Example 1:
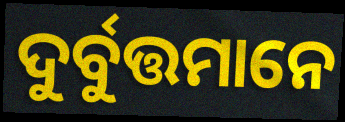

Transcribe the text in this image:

ଦୁର୍ବୁତ୍ତମାନେ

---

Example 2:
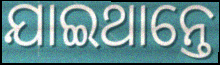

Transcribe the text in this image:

ଯାଇଥାନ୍ତେ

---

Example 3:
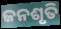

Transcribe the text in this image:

ଜନଶୃତି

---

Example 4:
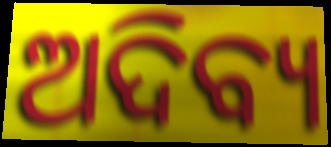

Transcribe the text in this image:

ଅଦିବ୍ୟ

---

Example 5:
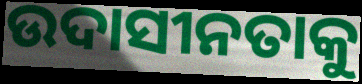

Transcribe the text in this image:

ଉଦାସୀନତାକୁ